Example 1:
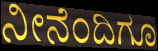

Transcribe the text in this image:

ನೀನೆಂದಿಗೂ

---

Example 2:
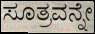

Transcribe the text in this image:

ಸೂತ್ರವನ್ನೇ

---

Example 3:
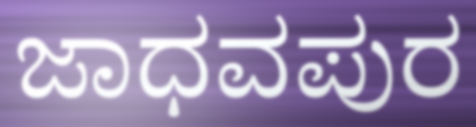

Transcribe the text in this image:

ಜಾಧವಪುರ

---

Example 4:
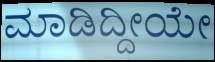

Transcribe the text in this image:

ಮಾಡಿದ್ದೀಯೇ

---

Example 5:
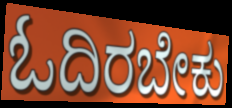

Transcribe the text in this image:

ಓದಿರಬೇಕು